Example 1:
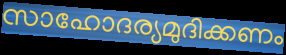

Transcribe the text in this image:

സാഹോദര്യമുദിക്കണം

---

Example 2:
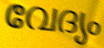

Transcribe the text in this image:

വേദ്യം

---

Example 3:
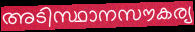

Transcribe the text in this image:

അടിസ്ഥാനസൗകര്യ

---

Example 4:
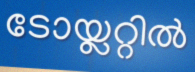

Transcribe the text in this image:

ടോയ്ലറ്റിൽ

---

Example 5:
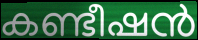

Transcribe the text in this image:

കണ്ടീഷൻ